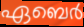
ഏബെർ